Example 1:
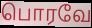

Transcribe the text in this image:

பொரவே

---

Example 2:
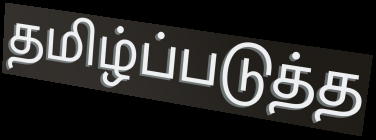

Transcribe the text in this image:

தமிழ்ப்படுத்த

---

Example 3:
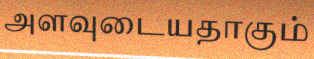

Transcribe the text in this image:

அளவுடையதாகும்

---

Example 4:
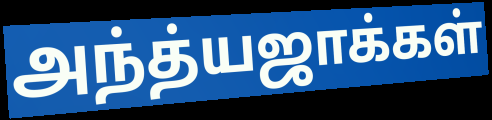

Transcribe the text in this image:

அந்த்யஜாக்கள்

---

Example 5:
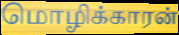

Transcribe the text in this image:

மொழிக்காரன்